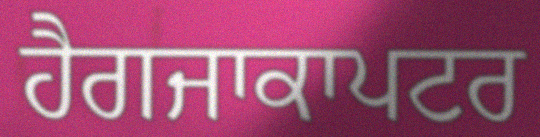
ਹੈਗਜਾਕਾਪਟਰ